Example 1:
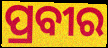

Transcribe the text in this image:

ପ୍ରବୀର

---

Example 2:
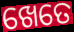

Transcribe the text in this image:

ଖେତେ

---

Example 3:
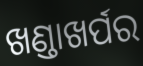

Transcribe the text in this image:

ଖଣ୍ଡାଖର୍ପର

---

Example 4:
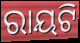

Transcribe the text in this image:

ରାୟଟି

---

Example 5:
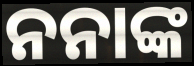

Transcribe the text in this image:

ନନାଙ୍କ